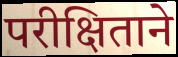
परीक्षिताने